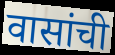
वासांची